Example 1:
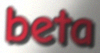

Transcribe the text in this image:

beta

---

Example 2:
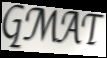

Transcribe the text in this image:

GMAT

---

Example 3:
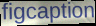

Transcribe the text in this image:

figcaption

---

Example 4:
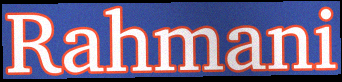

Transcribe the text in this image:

Rahmani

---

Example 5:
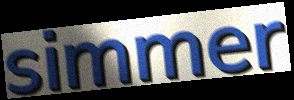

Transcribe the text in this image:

simmer